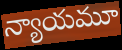
న్యాయమూ